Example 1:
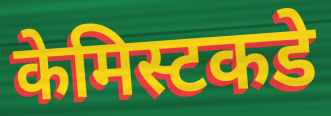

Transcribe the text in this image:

केमिस्टकडे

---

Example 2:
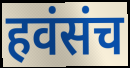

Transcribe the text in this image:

हवंसंच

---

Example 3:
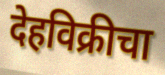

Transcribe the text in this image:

देहविक्रीचा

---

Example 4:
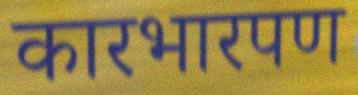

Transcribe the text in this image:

कारभारपण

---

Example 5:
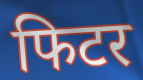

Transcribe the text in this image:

फिटर